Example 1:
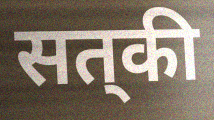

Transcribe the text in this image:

सत्‌की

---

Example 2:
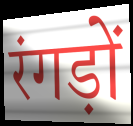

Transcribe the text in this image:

रंगड़ों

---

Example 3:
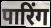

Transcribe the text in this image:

पारिंग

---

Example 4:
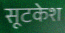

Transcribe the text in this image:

सूटकेश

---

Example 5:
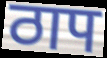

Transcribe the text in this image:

ठाप